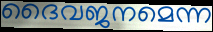
ദൈവജനമെന്ന